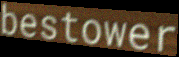
bestower